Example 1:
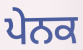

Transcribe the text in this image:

ਪੇਨਕ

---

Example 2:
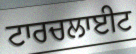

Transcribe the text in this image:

ਟਾਰਚਲਾਈਟ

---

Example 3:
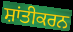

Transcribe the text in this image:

ਸ਼ਾਂਤੀਕਰਨ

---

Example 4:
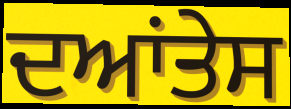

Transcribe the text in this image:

ਦਆਂਤੇਸ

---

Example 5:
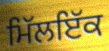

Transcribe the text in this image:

ਮਿੱਲਇੱਕ